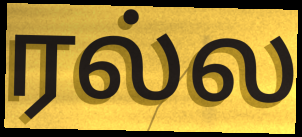
ரல்ல